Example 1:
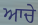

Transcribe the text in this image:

ਆਚੇ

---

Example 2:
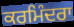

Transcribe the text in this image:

ਕਰਮਿੰਦਰਾ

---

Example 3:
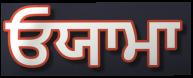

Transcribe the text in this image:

ਓਯਾਮਾ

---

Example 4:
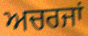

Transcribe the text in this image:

ਅਚਰਜਾਂ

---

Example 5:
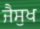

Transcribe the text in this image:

ਜੈਸੁਖ